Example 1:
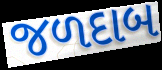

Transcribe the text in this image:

જળદાબ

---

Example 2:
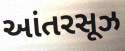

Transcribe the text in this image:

આંતરસૂઝ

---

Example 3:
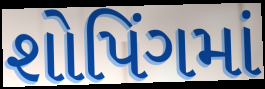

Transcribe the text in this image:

શોપિંગમાં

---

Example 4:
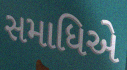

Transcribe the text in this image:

સમાધિએ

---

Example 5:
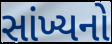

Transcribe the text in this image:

સાંખ્યનો